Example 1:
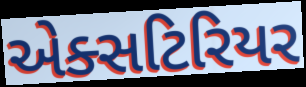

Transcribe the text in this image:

એક્સટિરિયર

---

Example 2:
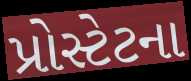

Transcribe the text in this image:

પ્રોસ્ટેટના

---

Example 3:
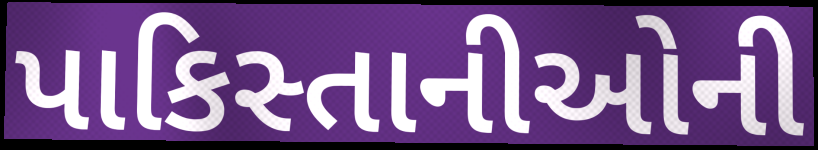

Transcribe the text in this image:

પાકિસ્તાનીઓની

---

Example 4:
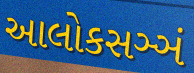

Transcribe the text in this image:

આલોકસઞ્ઞં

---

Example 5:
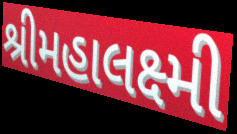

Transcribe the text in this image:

શ્રીમહાલક્ષ્મી